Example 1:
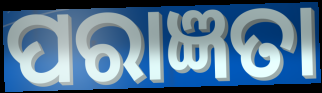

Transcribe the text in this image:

ପରାଜ୍ଞତା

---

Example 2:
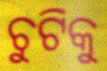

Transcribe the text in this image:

ଚୁଟିକୁ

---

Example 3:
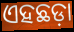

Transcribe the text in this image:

ଏହଛଡ଼ା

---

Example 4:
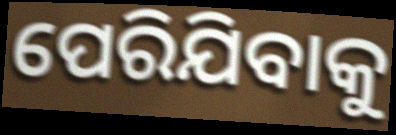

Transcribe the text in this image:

ପେରିଯିବାକୁ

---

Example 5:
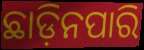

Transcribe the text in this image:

ଛାଡ଼ିନପାରି